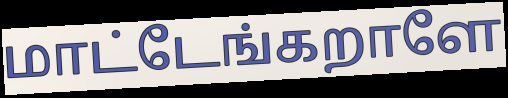
மாட்டேங்கறாளே